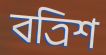
বত্ৰিশ